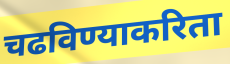
चढविण्याकरिता